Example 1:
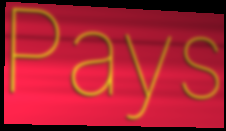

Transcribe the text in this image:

Pays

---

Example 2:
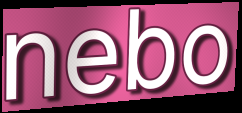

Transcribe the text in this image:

nebo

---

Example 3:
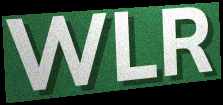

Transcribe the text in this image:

WLR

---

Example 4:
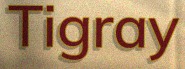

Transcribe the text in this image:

Tigray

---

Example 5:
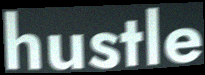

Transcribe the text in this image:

hustle